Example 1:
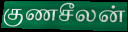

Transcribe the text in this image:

குணசீலன்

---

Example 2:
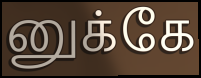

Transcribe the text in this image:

னுக்கே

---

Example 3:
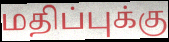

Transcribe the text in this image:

மதிப்புக்கு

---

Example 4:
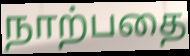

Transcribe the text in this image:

நாற்பதை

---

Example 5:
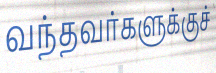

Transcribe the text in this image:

வந்தவர்களுக்குச்